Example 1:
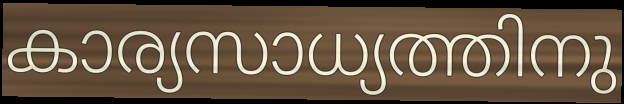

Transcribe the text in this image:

കാര്യസാധ്യത്തിനു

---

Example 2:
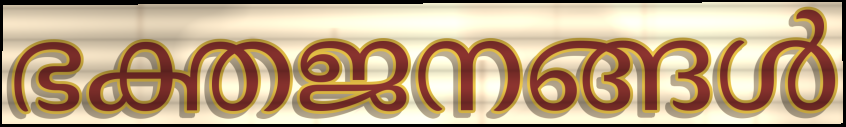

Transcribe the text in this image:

ഭക്തജനങ്ങൾ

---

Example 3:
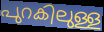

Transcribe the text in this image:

പുറകിലുള്ള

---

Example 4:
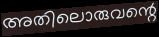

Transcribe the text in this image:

അതിലൊരുവന്റെ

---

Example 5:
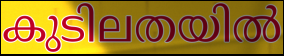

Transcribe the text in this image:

കുടിലതയിൽ